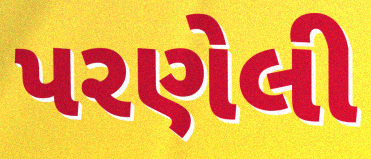
પરણેલી